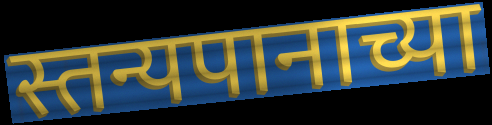
स्तन्यपानाच्या